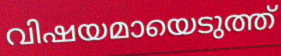
വിഷയമായെടുത്ത്